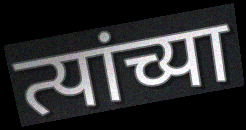
त्यांच्या